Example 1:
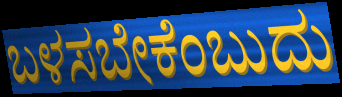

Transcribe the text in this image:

ಬಳಸಬೇಕೆಂಬುದು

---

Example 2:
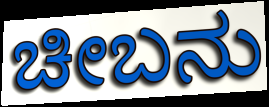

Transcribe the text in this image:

ಚೀಬನು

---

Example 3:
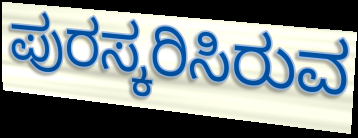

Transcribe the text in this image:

ಪುರಸ್ಕರಿಸಿರುವ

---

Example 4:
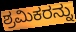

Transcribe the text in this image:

ಶ್ರಮಿಕರನ್ನು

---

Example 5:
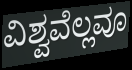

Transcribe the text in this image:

ವಿಶ್ವವೆಲ್ಲವೂ